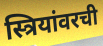
स्त्रियांवरची